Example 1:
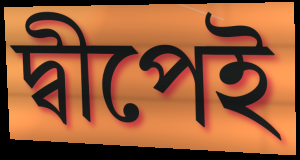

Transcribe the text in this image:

দ্বীপেই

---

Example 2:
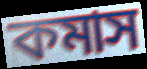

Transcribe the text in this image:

কমাস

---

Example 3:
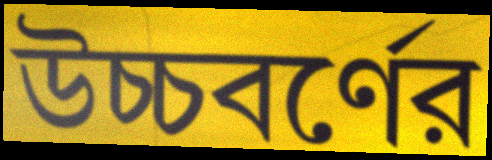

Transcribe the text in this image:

উচ্চবর্ণের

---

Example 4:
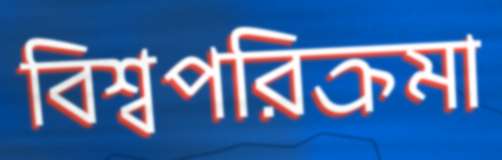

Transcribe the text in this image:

বিশ্বপরিক্রমা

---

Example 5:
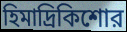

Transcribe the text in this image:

হিমাদ্রিকিশোর